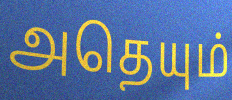
அதெயும்